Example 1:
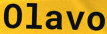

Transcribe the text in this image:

Olavo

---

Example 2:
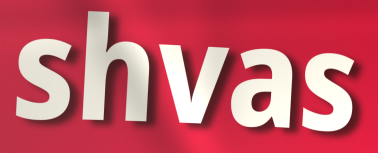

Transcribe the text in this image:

shvas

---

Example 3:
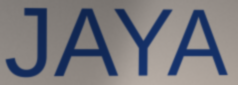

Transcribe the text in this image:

JAYA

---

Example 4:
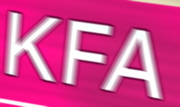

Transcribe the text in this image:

KFA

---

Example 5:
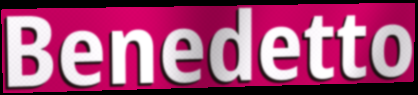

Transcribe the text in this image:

Benedetto